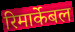
रिमार्केबल